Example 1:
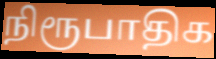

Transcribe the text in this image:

நிரூபாதிக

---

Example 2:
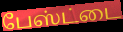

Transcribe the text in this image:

பேஸ்ட்டை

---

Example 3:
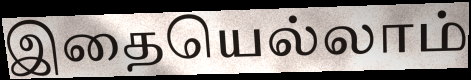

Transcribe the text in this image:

இதையெல்லாம்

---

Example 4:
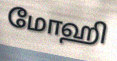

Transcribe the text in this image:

மோஹி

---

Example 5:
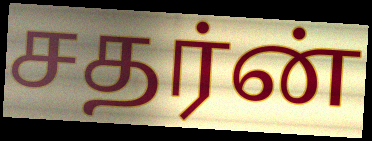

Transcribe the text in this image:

சதர்ன்